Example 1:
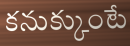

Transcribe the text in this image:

కనుక్కుంటే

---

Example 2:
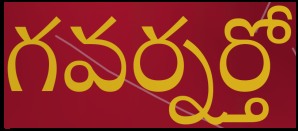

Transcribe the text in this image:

గవర్నర్తో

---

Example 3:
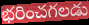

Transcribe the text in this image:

భరించగలడు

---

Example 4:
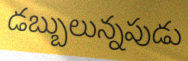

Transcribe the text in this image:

డబ్బులున్నపుడు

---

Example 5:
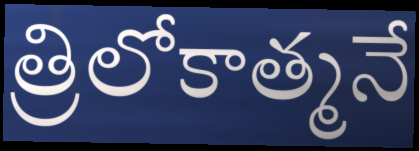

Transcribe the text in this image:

త్రిలోకాత్మనే